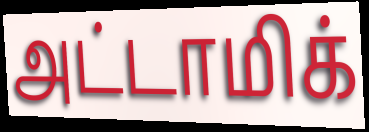
அட்டாமிக்